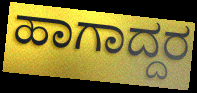
ಹಾಗಾದ್ದರ